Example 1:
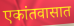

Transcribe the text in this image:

एकांतवासात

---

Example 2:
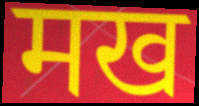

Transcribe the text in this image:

मख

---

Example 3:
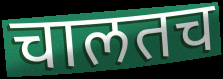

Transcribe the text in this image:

चालतच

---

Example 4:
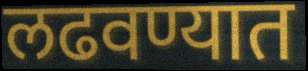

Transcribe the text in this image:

लढवण्यात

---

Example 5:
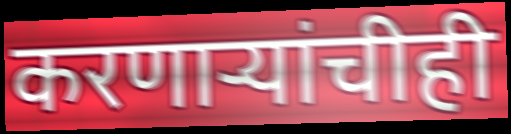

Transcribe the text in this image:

करणाऱ्यांचीही